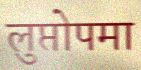
लुप्तोपमा